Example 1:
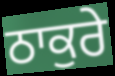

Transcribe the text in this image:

ਠਾਕੁਰੇ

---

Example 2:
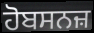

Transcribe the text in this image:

ਹੋਬਸਨਜ਼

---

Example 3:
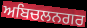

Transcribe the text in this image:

ਅਬਿਚਲਨਗਰ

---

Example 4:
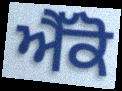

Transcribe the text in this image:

ਐੱਕੋ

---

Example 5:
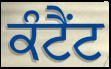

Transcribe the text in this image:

ਕੰਟੈਂਟ